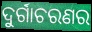
ଦୁର୍ଗାଚରଣର